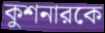
কুশনারকে